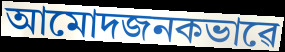
আমোদজনকভাৱে